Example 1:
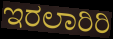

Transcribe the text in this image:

ಇರಲಾರಿರಿ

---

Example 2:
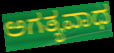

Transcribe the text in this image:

ಅಗತ್ಯವಾಧ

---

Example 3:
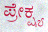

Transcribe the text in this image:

ಪ್ರೇಕ್ಷ್ಯ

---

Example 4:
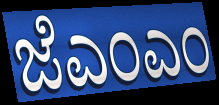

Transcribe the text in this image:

ಜೆಎಂಎಂ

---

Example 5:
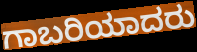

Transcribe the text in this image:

ಗಾಬರಿಯಾದರು